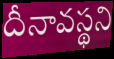
దీనావస్థని